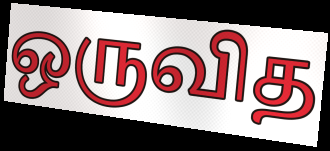
ஒருவித